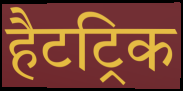
हैटट्रिक